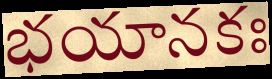
భయానకః